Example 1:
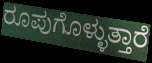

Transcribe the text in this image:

ರೂಪುಗೊಳ್ಳುತ್ತಾರೆ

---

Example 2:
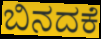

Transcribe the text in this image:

ಬಿನದಕೆ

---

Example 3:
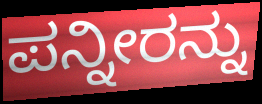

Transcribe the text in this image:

ಪನ್ನೀರನ್ನು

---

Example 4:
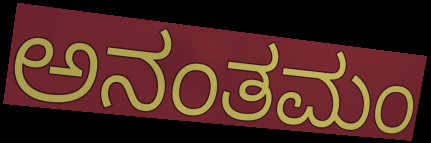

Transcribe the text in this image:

ಅನಂತಮಂ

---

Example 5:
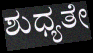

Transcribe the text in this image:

ಶುಧ್ಯತೇ